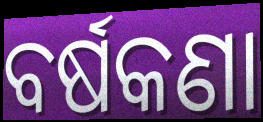
ବର୍ଷକଣା